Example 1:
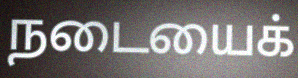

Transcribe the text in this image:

நடையைக்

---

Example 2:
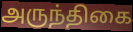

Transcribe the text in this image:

அருந்திகை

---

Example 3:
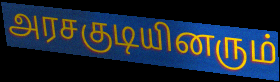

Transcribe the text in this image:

அரசகுடியினரும்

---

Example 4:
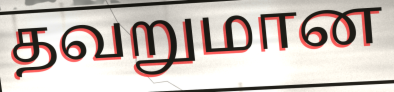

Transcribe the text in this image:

தவறுமான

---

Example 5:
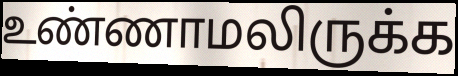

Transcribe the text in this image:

உண்ணாமலிருக்க